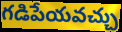
గడిపేయవచ్చు